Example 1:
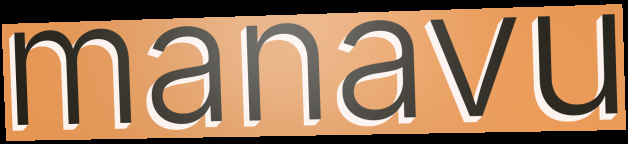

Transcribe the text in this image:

manavu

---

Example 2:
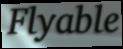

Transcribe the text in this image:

Flyable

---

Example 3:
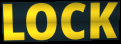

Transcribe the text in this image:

LOCK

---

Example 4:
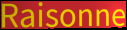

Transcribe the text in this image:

Raisonne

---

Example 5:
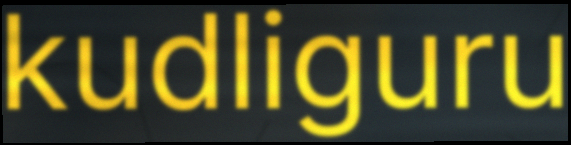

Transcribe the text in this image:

kudliguru